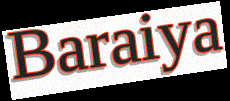
Baraiya